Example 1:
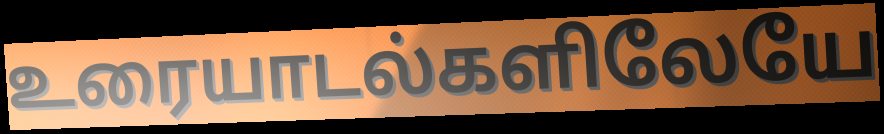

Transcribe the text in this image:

உரையாடல்களிலேயே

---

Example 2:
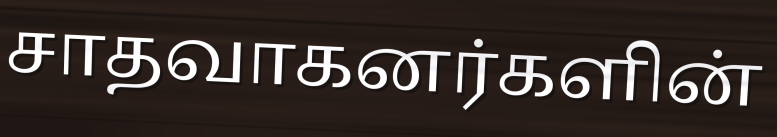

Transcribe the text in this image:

சாதவாகனர்களின்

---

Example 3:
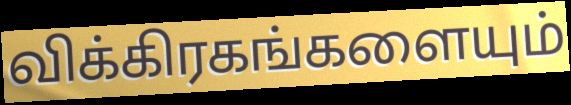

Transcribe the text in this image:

விக்கிரகங்களையும்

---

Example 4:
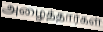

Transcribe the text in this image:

அழைத்தார்கள்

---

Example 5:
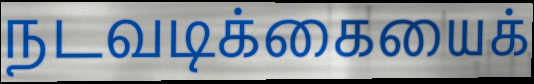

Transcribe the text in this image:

நடவடிக்கையைக்